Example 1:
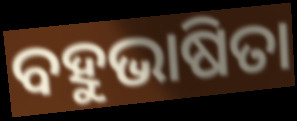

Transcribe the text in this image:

ବହୁଭାଷିତା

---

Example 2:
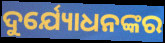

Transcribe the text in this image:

ଦୁର୍ଯ୍ୟୋଧନଙ୍କର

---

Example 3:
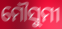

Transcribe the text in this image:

ମୌସୁମୀ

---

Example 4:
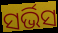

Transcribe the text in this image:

ସର୍ଭିସ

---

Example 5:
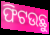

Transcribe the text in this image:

ଫିଟଉଛୁ